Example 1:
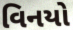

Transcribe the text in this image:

વિનયો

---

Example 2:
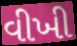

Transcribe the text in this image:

વીખી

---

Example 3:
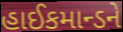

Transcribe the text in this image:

હાઈકમાન્ડને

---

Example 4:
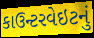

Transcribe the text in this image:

કાઉન્ટરવેઇટનું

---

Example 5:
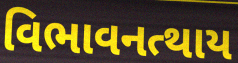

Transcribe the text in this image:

વિભાવનત્થાય